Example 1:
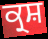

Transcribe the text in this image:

ਕ੍ਰਸ਼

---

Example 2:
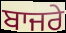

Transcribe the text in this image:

ਬਾਜਰੇ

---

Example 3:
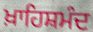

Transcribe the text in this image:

ਖ਼ਾਹਿਸ਼ਮੰਦ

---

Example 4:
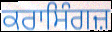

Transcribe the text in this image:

ਕਰਾਸਿੰਗਜ਼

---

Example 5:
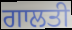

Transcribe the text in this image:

ਗਾਲਤੀ